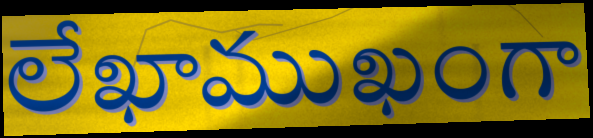
లేఖాముఖంగా